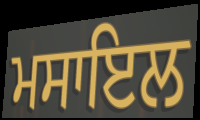
ਮਸਾਇਲ